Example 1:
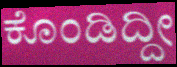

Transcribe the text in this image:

ಕೊಂಡಿದ್ದೀ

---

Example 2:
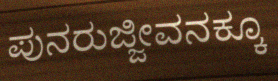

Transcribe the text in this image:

ಪುನರುಜ್ಜೀವನಕ್ಕೂ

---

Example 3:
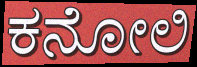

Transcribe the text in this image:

ಕನೋಲಿ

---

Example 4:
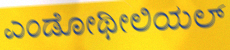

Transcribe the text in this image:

ಎಂಡೋಥೀಲಿಯಲ್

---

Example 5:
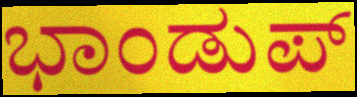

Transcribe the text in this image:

ಭಾಂಡುಪ್